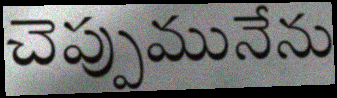
చెప్పుమునేను